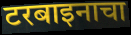
टरबाइनाचा